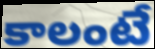
కాలంటే